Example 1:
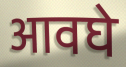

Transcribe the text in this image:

आवघे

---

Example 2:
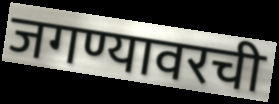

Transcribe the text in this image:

जगण्यावरची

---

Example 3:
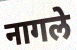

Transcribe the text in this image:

नागले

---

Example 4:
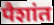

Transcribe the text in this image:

पैशांत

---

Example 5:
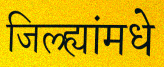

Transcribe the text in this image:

जिल्ह्यांमधे